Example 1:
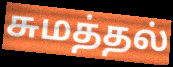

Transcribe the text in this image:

சுமத்தல்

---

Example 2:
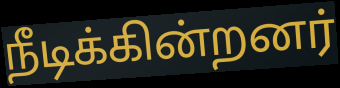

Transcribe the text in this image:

நீடிக்கின்றனர்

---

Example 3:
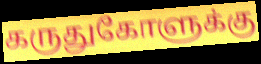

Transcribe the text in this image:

கருதுகோளுக்கு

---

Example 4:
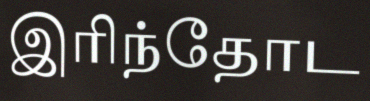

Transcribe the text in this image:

இரிந்தோட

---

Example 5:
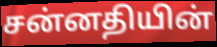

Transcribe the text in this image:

சன்னதியின்